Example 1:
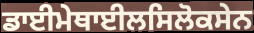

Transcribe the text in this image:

ਡਾਈਮੇਥਾਈਲਸਿਲੋਕਸੇਨ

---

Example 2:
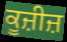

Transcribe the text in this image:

ਕੂਜ਼ੀਜ਼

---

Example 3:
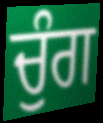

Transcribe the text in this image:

ਚੁੰਗ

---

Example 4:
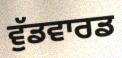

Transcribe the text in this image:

ਵੁੱਡਵਾਰਡ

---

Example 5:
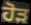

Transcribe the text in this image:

ਹੋੜ